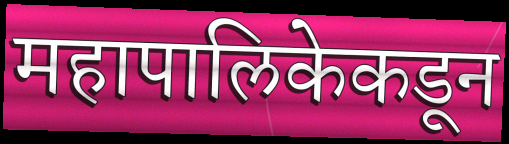
महापालिकेकडून